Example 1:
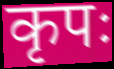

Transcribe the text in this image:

कृपः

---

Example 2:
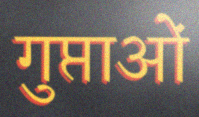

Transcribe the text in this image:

गुप्ताओं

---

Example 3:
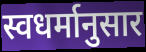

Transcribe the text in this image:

स्वधर्मानुसार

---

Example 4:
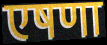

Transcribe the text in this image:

एषणा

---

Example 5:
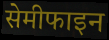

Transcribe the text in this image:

सेमीफाइन